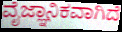
ವೈಜ್ಞಾನಿಕವಾಗಿದೆ